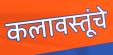
कलावस्तूंचे